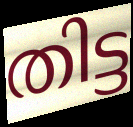
തിട്ട